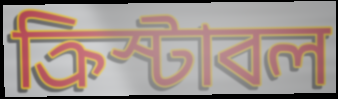
ক্রিস্টাবল